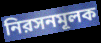
নিরসনমূলক